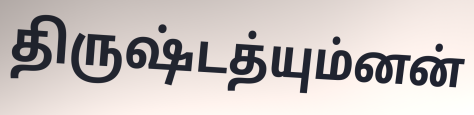
திருஷ்டத்யும்னன்